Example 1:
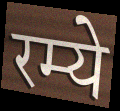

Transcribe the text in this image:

रम्ये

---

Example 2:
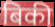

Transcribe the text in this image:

बिकी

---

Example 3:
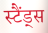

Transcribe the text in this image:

स्टैंड्स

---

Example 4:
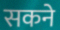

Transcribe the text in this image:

सकने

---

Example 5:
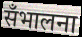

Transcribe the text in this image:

सँभालना